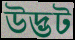
উদ্ভট